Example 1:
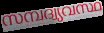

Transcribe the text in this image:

സമ്പദ്വ്യവസ്ഥ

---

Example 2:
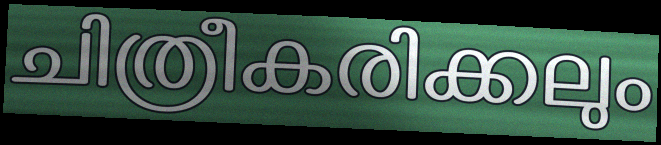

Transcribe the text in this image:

ചിത്രീകരിക്കലും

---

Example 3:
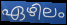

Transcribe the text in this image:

ഏഴിലം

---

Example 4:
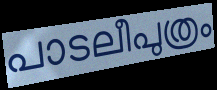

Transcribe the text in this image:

പാടലീപുത്രം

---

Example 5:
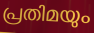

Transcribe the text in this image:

പ്രതിമയും